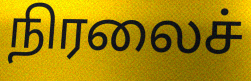
நிரலைச்